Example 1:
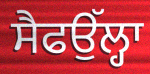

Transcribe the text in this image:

ਸੈਫਉੱਲ੍ਹਾ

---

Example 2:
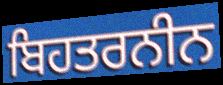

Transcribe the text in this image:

ਬਿਹਤਰਨੀਨ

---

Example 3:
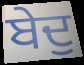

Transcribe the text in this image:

ਬੇਦੁ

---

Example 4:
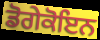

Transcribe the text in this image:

ਡੋਗੇਕੋਇਨ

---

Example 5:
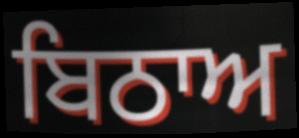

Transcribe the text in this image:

ਬਿਠਾਅ